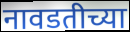
नावडतीच्या